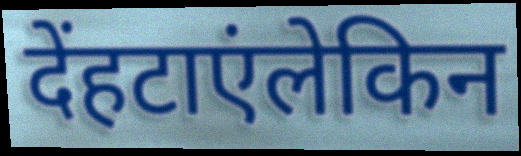
देंहटाएंलेकिन